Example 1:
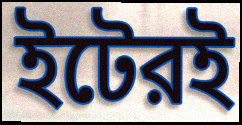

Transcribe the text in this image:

ইটেরই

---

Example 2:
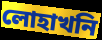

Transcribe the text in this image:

লোহাখনি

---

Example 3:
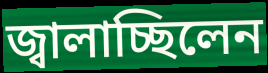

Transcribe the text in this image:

জ্বালাচ্ছিলেন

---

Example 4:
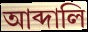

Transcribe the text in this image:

আব্দালি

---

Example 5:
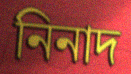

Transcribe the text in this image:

নিনাদ